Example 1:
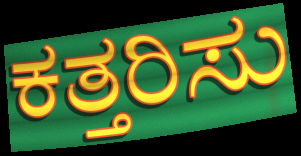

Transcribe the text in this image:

ಕತ್ತರಿಸು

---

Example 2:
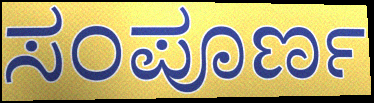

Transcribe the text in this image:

ಸಂಪೂರ್ಣ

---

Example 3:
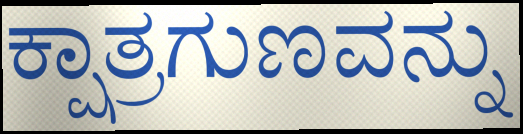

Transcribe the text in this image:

ಕ್ಷಾತ್ರಗುಣವನ್ನು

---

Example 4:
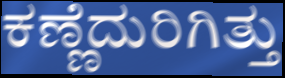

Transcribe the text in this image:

ಕಣ್ಣೆದುರಿಗಿತ್ತು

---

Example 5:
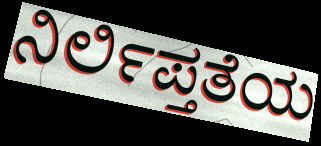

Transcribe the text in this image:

ನಿರ್ಲಿಪ್ತತೆಯ